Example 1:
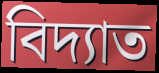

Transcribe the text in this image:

বিদ্যাত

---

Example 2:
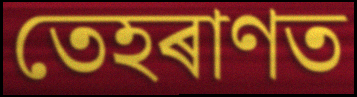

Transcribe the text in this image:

তেহৰাণত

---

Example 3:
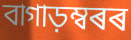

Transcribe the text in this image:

বাগাড়ম্বৰৰ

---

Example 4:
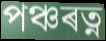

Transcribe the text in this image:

পঞ্চৰত্ন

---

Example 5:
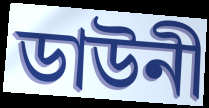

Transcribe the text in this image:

ডাউনী